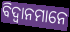
ବିଦ୍ଵାନମାନେ